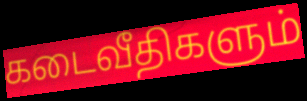
கடைவீதிகளும்